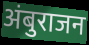
अंबुराजन